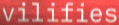
vilifies